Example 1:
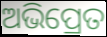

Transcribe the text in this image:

ଅଭିପ୍ରେତ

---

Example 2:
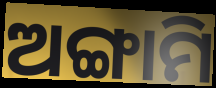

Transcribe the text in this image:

ଅଙ୍ଗାମି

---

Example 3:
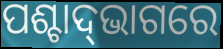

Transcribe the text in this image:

ପଶ୍ଚାଦ୍‌ଭାଗରେ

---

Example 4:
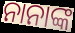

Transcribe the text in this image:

ନାନାଙ୍କ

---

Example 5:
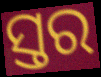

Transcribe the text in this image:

ସ୍ତର